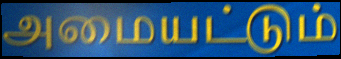
அமையட்டும்